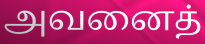
அவனைத்